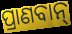
ପ୍ରାଣବାନ୍